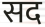
सद